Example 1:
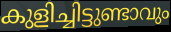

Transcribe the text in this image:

കുളിച്ചിട്ടുണ്ടാവും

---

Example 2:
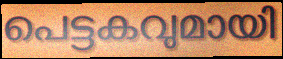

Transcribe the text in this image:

പെട്ടകവുമായി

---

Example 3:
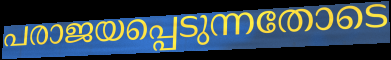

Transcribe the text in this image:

പരാജയപ്പെടുന്നതോടെ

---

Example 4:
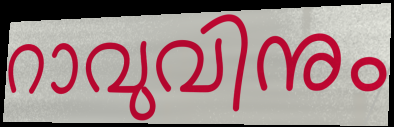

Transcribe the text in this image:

റാവുവിനും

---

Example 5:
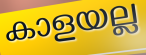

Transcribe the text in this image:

കാളയല്ല